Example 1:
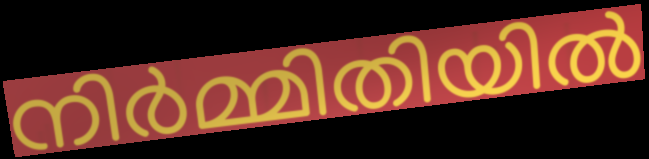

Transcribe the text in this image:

നിർമ്മിതിയിൽ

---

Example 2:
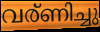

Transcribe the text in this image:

വര്ണിച്ചു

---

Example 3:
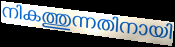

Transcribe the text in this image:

നികത്തുന്നതിനായി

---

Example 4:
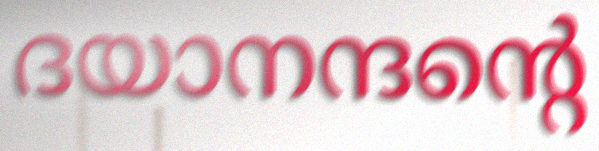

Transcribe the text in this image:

ദയാനന്ദന്റെ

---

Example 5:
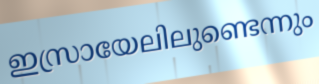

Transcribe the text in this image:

ഇസ്രായേലിലുണ്ടെന്നും